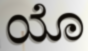
ಯೊ